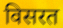
विसरत